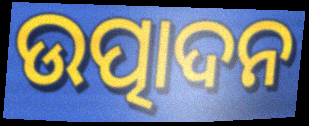
ଉତ୍ପାଦନ